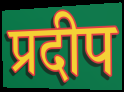
प्रदीप